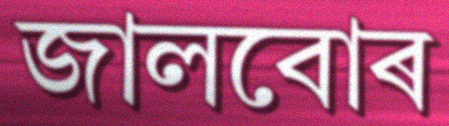
জালবোৰ